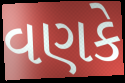
વણકે